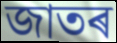
জাতৰ